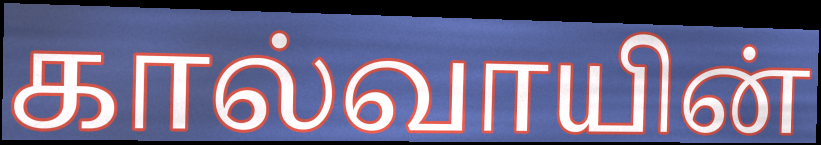
கால்வாயின்